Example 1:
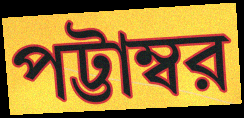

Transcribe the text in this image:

পট্টাম্বর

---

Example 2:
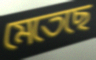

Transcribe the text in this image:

মেতেছে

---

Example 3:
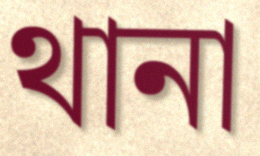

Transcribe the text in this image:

থানা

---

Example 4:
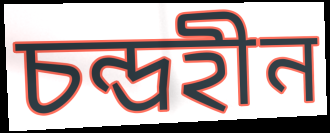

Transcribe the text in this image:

চন্দ্রহীন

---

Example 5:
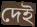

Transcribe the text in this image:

দেই